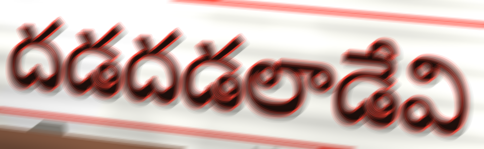
దడదడలాడేవి